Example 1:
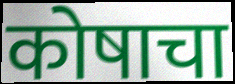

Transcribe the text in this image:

कोषाचा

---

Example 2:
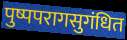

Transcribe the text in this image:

पुष्पपरागसुगंधित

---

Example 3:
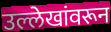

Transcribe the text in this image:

उल्लेखांवरून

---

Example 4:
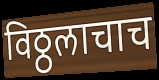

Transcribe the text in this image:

विठ्ठलाचाच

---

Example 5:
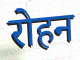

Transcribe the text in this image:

रोहन